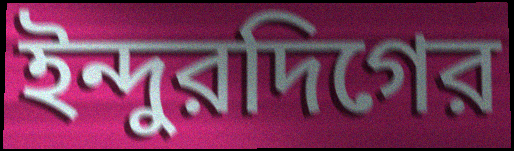
ইন্দুরদিগের